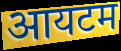
आयटम